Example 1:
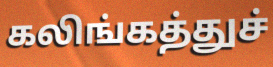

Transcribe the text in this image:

கலிங்கத்துச்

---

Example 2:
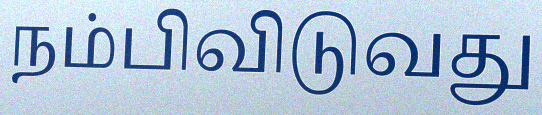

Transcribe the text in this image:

நம்பிவிடுவது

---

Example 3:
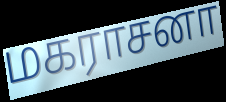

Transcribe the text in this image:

மகராசனா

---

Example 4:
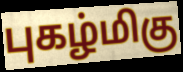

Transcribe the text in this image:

புகழ்மிகு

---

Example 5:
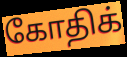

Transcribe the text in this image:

கோதிக்